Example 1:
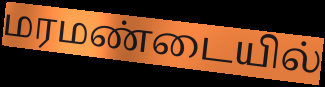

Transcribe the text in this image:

மரமண்டையில்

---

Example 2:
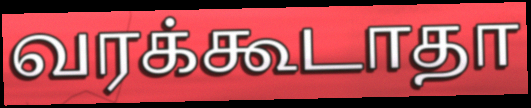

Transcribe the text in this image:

வரக்கூடாதா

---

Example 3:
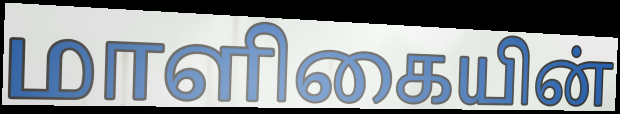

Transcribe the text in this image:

மாளிகையின்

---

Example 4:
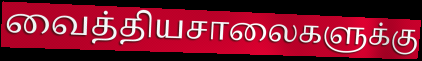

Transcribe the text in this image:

வைத்தியசாலைகளுக்கு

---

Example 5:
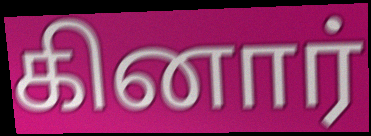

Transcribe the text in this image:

கினார்